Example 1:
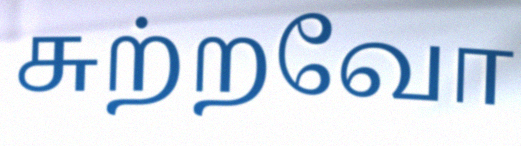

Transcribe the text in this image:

சுற்றவோ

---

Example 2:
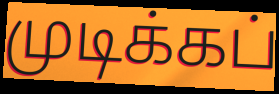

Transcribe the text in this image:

முடிக்கப்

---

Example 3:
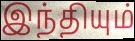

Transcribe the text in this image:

இந்தியும்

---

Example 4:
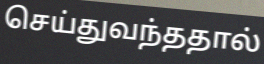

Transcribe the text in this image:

செய்துவந்ததால்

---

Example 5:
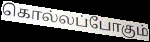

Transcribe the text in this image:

கொல்லப்போகும்